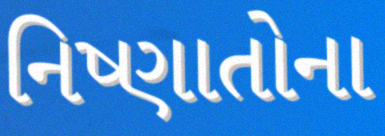
નિષ્ણાતોના